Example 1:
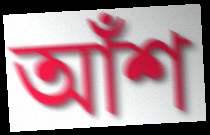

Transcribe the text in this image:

আঁশ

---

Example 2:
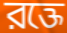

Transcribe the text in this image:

রক্তে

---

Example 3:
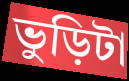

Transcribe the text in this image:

ভুড়িটা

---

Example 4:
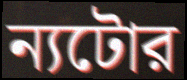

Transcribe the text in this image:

ন্যটোর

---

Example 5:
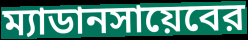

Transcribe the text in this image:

ম্যাডানসায়েবের